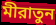
মীরাতুন